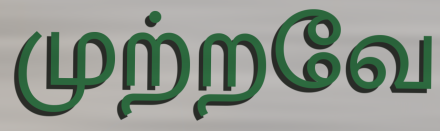
முற்றவே